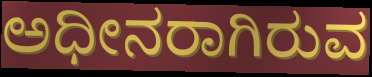
ಅಧೀನರಾಗಿರುವ